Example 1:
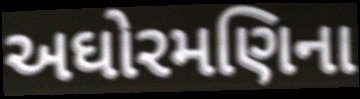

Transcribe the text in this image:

અઘોરમણિના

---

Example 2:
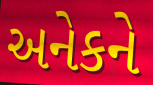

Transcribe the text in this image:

અનેકને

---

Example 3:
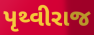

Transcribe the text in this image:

પૃથ્વીરાજ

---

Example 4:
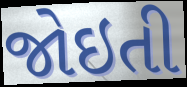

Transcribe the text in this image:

જોઇતી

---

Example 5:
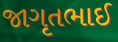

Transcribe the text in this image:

જાગૃતભાઈ